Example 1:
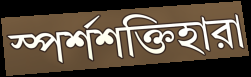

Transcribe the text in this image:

স্পর্শশক্তিহারা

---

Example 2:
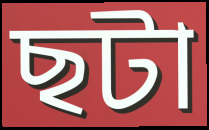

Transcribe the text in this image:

ছটা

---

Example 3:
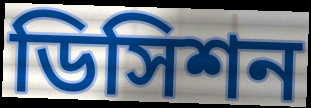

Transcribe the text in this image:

ডিসিশন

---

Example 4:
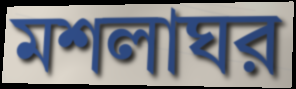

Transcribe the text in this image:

মশলাঘর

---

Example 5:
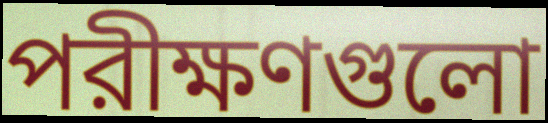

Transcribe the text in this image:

পরীক্ষণগুলো